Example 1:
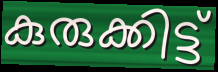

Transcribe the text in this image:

കുരുക്കിട്ട്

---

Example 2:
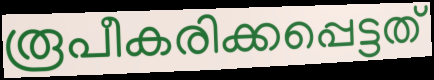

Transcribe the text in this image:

രൂപീകരിക്കപ്പെട്ടത്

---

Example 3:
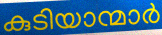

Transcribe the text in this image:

കുടിയാന്മാർ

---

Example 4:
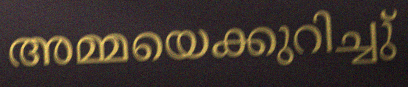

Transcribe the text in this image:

അമ്മയെക്കുറിച്ചു്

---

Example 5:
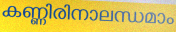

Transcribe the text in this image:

കണ്ണിരിനാലന്ധമാം